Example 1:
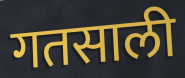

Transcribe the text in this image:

गतसाली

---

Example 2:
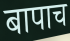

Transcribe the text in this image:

बापाच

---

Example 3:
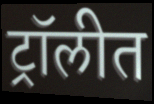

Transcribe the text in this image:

ट्रॉलीत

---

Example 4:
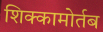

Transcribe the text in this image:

शिक्‍कामोर्तब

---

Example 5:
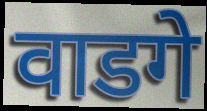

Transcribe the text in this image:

वाडगे